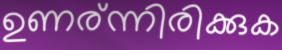
ഉണര്ന്നിരിക്കുക